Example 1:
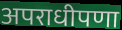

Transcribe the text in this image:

अपराधीपणा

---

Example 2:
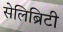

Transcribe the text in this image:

सेलिब्रिटी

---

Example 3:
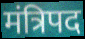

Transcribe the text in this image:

मंत्रिपद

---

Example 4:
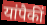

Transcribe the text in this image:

यांपैकीं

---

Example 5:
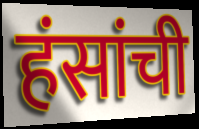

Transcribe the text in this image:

हंसांची